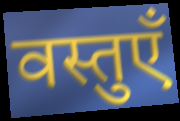
वस्तुएँ